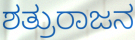
ಶತ್ರುರಾಜನ